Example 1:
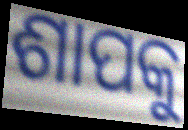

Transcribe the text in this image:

ଶାପକୁ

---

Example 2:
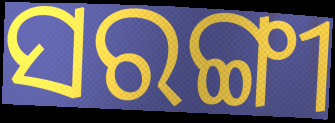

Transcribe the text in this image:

ସରଙ୍ଗୀ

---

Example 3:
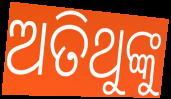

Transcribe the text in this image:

ଅତିଥୁଙ୍କୁ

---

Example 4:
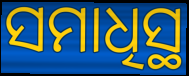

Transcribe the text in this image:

ସମାଧିସ୍ଥ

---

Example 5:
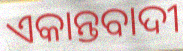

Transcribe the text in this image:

ଏକାନ୍ତବାଦୀ